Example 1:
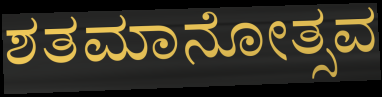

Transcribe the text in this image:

ಶತಮಾನೋತ್ಸವ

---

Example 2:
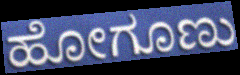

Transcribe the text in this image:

ಹೋಗೂಣು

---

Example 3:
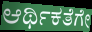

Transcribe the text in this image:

ಆರ್ಥಿಕತೆಗೇ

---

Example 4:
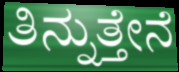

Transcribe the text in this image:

ತಿನ್ನುತ್ತೇನೆ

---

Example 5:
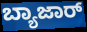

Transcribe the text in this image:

ಬ್ಯಾಜಾರ್